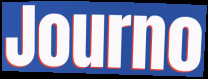
Journo